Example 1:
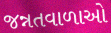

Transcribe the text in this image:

જન્નતવાળાઓ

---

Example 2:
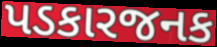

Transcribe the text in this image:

પડકારજનક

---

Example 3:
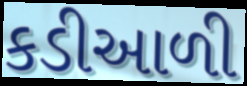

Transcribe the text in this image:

કડીઆળી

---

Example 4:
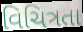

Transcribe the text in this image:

વિચિત્રતા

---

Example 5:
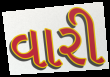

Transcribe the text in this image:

વારી